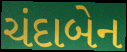
ચંદાબેન